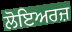
ਲੋਇਅਰਜ਼